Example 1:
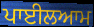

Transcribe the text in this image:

ਪਾਈਲਆਮ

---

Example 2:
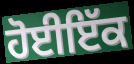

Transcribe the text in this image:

ਹੋਈਇੱਕ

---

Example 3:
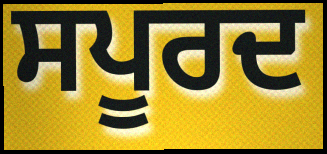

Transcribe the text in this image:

ਸਪੂਰਦ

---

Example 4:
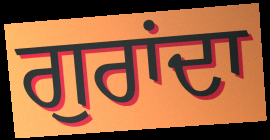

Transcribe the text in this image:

ਗੁਰਾਂਦਾ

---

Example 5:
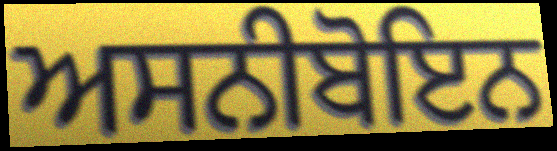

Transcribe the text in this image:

ਅਸਨੀਬੋਇਨ